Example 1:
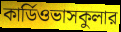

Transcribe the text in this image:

কার্ডিওভাসকুলার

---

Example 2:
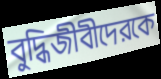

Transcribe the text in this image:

বুদ্ধিজীবীদেরকে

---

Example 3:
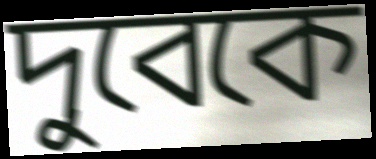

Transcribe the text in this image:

দুবেকে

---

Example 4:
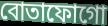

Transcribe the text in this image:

বোতাফোগো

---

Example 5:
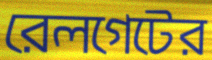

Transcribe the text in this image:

রেলগেটের